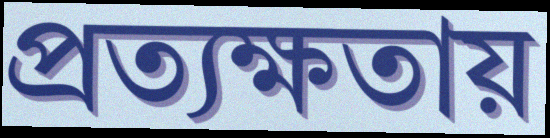
প্রত্যক্ষতায়